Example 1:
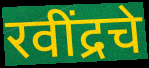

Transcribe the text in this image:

रवींद्रचे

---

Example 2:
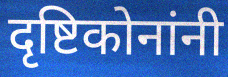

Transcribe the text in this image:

दृष्टिकोनांनी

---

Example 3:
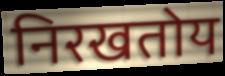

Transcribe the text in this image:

निरखतोय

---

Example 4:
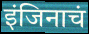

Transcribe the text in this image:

इंजिनाचं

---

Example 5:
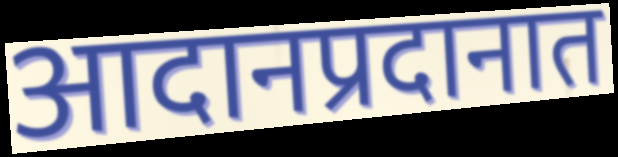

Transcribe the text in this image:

आदानप्रदानात